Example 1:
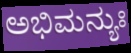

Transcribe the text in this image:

ಅಭಿಮನ್ಯುಃ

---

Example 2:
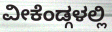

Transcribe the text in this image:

ವೀಕೆಂಡ್ಗಳಲ್ಲಿ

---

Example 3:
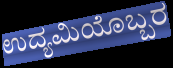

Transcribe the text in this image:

ಉದ್ಯಮಿಯೊಬ್ಬರ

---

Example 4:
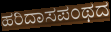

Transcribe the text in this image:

ಹರಿದಾಸಪಂಥದ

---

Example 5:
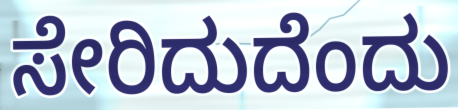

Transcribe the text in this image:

ಸೇರಿದುದೆಂದು